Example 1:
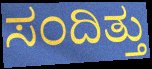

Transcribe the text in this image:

ಸಂದಿತ್ತು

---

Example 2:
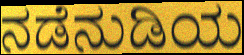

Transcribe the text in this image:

ನಡೆನುಡಿಯ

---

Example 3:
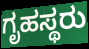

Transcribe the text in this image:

ಗೃಹಸ್ಥರು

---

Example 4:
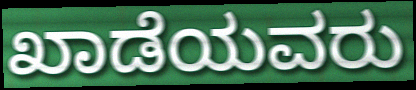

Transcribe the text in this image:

ಖಾಡೆಯವರು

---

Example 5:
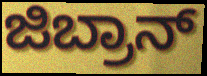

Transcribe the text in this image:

ಜಿಬ್ರಾನ್